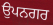
ਉਪਨਗਰ